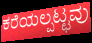
ಕರೆಯಲ್ಪಟ್ಟವು